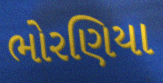
ભોરણિયા